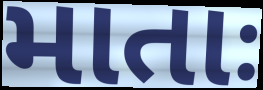
માતાઃ